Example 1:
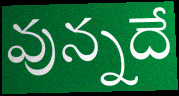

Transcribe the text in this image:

వున్నదే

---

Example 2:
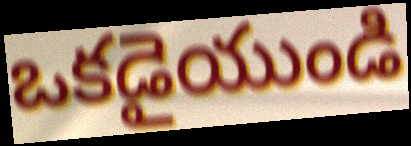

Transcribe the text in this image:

ఒకడైయుండి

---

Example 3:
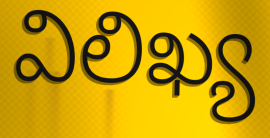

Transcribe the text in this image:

విలిఖ్య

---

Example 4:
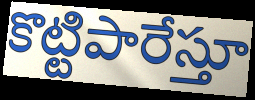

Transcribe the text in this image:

కొట్టిపారేస్తూ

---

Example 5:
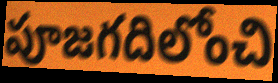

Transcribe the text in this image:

పూజగదిలోంచి